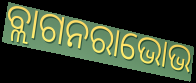
ବ୍ଲାଗନରାଭୋଭ